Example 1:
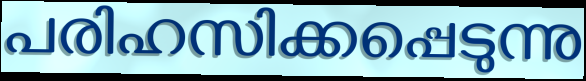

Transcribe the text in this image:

പരിഹസിക്കപ്പെടുന്നു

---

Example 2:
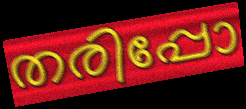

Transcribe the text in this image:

തരിപ്പോ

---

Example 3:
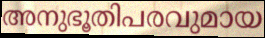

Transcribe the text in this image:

അനുഭൂതിപരവുമായ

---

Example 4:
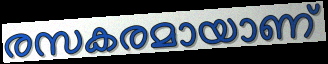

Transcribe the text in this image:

രസകരമായാണ്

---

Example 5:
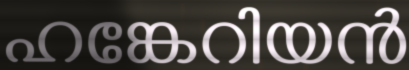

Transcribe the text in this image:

ഹങ്കേറിയൻ